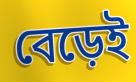
বেড়েই